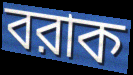
বরাক